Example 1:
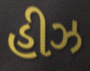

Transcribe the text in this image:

હીઝ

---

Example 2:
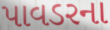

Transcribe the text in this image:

પાવડરના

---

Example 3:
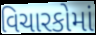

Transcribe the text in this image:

વિચારકોમાં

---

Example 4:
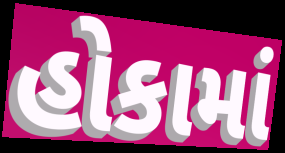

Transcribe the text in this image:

હોકામાં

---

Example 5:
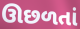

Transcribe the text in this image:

ઊછળતાં